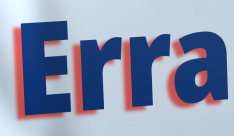
Erra